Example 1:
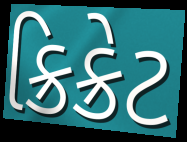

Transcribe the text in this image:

ક્રિક્રેટ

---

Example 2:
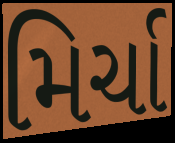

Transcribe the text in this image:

મિર્ચા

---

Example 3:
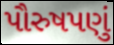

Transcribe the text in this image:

પૌરુષપણું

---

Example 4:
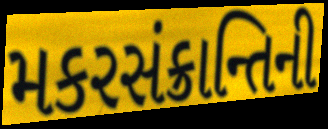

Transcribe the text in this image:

મકરસંક્રાન્તિની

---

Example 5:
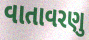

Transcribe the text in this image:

વાતાવરણુ